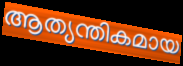
ആത്യന്തികമായ